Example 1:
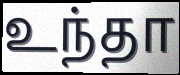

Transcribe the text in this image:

உந்தா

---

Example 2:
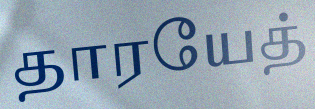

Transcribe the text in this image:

தாரயேத்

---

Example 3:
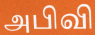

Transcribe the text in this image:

அபிவி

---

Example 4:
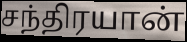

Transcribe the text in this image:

சந்திரயான்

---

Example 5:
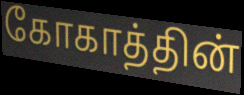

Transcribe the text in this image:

கோகாத்தின்